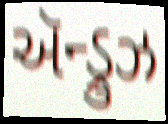
ઍન્ડ્રુઝ